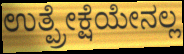
ಉತ್ಪ್ರೇಕ್ಷೆಯೇನಲ್ಲ